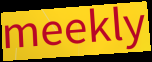
meekly